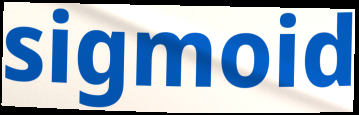
sigmoid